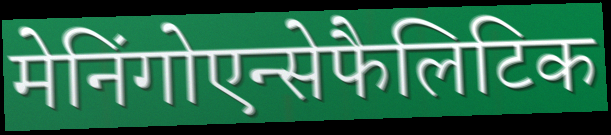
मेनिंगोएन्सेफैलिटिक